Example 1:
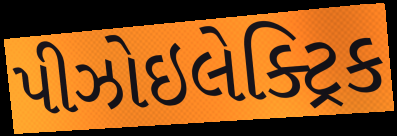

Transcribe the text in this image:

પીઝોઇલેક્ટ્રિક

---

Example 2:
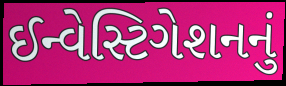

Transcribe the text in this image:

ઈન્વેસ્ટિગેશનનું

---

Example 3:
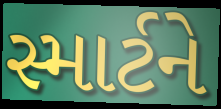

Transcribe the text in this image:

સ્માર્ટને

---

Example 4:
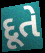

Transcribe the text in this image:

દૂતે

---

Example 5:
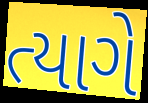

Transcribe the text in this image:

ત્યાગે